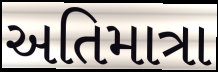
અતિમાત્રા